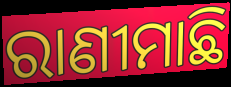
ରାଣୀମାଛି